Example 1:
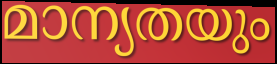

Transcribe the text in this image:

മാന്യതയും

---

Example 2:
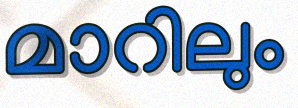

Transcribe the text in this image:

മാറിലും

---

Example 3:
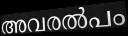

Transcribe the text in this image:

അവരൽപം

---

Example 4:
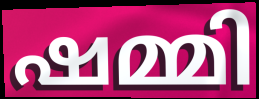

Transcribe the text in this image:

ഷമ്മി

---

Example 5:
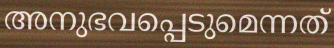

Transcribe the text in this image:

അനുഭവപ്പെടുമെന്നത്